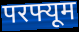
परफ्यूम